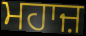
ਮਹਾਜ਼